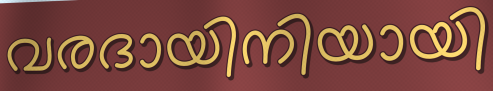
വരദായിനിയായി